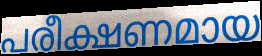
പരീക്ഷണമായ